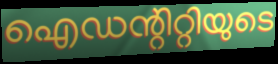
ഐഡന്റിറ്റിയുടെ